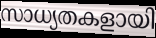
സാധ്യതകളായി